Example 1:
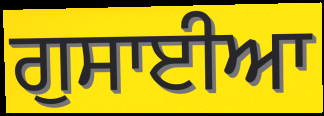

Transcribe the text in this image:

ਗੁਸਾਈਆ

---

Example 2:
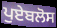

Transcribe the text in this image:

ਪੁਏਬਲੋਸ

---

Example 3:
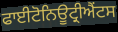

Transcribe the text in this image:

ਫਾਈਟੋਨਿਊਟ੍ਰੀਐਂਟਸ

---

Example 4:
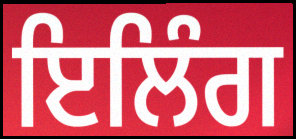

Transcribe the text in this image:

ਇਲਿੰਗ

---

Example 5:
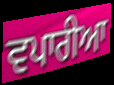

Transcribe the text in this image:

ਵਪਾਰੀਆ